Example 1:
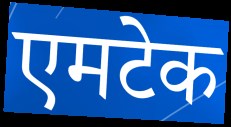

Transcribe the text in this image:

एमटेक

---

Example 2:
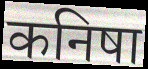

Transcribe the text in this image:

कनिषा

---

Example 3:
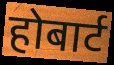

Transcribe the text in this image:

होबार्ट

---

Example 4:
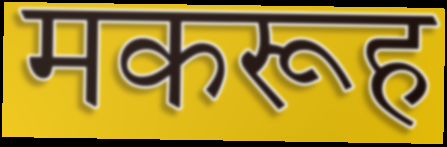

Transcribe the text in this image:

मकरूह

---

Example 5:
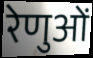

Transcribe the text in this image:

रेणुओं